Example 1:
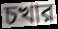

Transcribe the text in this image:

চখার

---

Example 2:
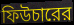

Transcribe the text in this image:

ফিউচারের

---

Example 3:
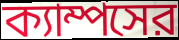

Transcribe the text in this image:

ক্যাম্পসের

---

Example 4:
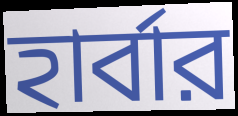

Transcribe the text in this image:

হার্বার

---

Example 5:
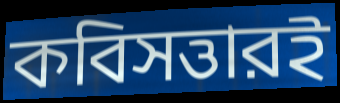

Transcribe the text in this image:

কবিসত্তারই